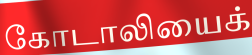
கோடாலியைக்